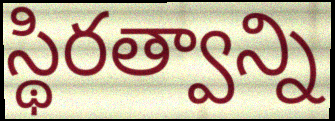
స్థిరత్వాన్ని